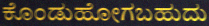
ಕೊಂಡುಹೋಗಬಹುದು